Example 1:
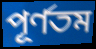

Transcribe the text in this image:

পূর্ণতম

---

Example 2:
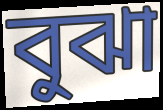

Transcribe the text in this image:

বুঝা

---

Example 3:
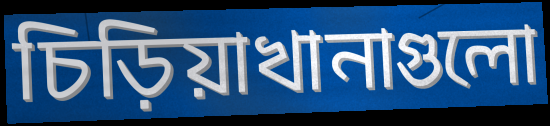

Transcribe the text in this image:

চিড়িয়াখানাগুলো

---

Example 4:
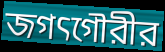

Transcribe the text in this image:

জগৎগৌরীর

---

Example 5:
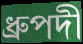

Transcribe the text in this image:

ধ্রুপদী